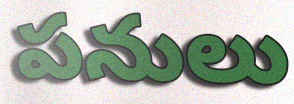
పనులు